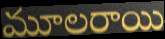
మూలరాయి